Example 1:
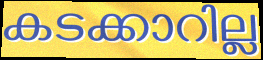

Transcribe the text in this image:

കടക്കാറില്ല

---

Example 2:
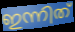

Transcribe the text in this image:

ഇന്നിത്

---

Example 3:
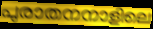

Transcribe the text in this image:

പുരാതനനാളിലെ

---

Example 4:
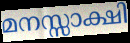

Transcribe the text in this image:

മനസ്സാക്ഷി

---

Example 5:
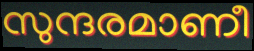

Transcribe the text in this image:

സുന്ദരമാണീ